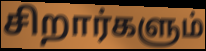
சிறார்களும்